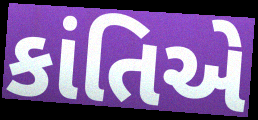
કાંતિએ